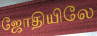
ஜோதியிலே